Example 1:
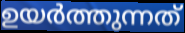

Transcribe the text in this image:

ഉയർത്തുന്നത്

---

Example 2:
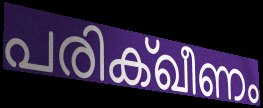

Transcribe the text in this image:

പരിക്ഖീണം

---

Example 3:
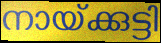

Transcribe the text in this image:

നായ്‌ക്കുട്ടി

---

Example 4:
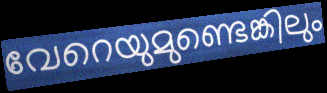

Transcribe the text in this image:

വേറെയുമുണ്ടെങ്കിലും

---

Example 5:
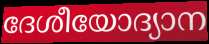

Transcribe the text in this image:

ദേശീയോദ്യാന